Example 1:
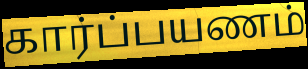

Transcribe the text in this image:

கார்ப்பயணம்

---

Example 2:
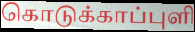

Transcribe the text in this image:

கொடுக்காப்புளி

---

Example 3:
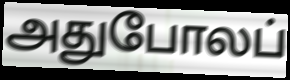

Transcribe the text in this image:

அதுபோலப்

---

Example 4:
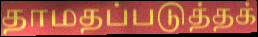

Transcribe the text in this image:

தாமதப்படுத்தக்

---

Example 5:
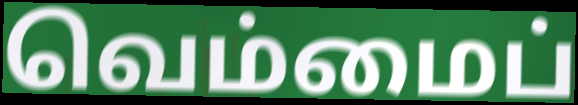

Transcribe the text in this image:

வெம்மைப்